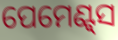
ପେମେଣ୍ଟ୍‌ସ